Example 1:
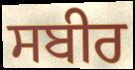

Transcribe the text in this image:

ਸਬੀਰ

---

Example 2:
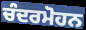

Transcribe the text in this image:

ਚੰਦਰਮੋਹਨ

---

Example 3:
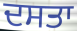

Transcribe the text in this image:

ਦਸਤਾ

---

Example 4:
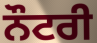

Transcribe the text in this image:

ਨੌਟਰੀ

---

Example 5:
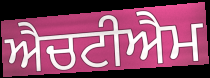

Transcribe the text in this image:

ਐਚਟੀਐਮ